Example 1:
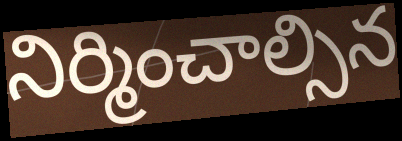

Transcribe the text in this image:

నిర్మించాల్సిన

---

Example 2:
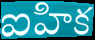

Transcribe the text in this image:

ఐహిక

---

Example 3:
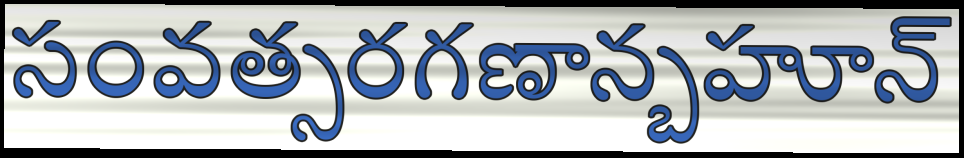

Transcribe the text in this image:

సంవత్సరగణాన్బహూన్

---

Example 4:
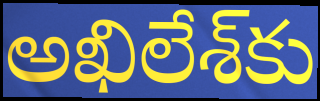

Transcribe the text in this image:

అఖిలేశ్‌కు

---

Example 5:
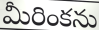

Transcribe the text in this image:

మీరింకను